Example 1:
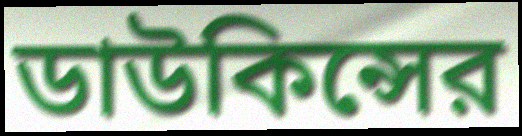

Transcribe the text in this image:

ডাউকিন্সের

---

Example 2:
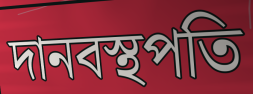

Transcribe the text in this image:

দানবস্থপতি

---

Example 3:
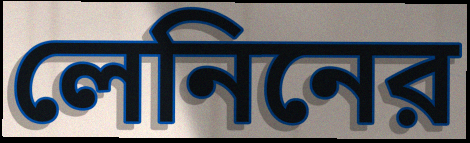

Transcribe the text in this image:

লেনিনের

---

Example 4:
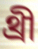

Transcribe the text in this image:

থ্রী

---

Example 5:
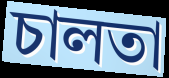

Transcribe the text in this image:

চালতা